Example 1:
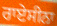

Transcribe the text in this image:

ਰਾਏਸੀਨਾ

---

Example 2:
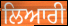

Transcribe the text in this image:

ਲਿਆਰੀ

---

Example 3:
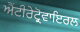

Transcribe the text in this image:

ਐਂਟੀਰੇਟ੍ਰੋਵਾਇਰਲ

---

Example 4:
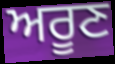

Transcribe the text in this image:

ਅਰੂਣ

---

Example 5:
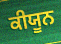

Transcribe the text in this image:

ਕੀਯੂਨ